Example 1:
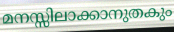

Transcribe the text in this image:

മനസ്സിലാക്കാനുതകും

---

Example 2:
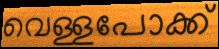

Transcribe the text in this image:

വെള്ളപോക്ക്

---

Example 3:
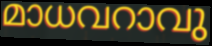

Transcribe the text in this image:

മാധവറാവു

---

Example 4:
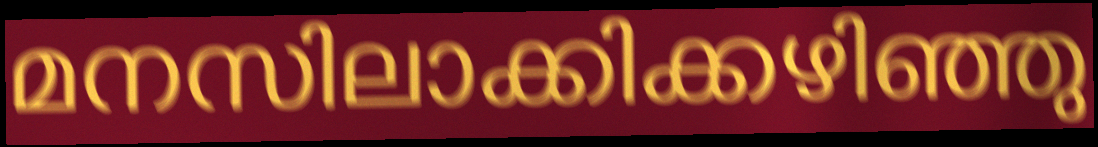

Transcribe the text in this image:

മനസിലാക്കിക്കഴിഞ്ഞു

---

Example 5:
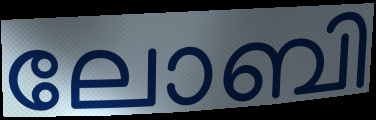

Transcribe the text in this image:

ലോബി